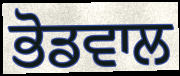
ਭੋਡਵਾਲ